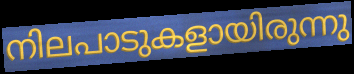
നിലപാടുകളായിരുന്നു